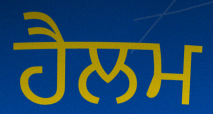
ਹੈਲਮ